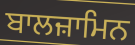
ਬਾਲਜ਼ਾਮਿਨ